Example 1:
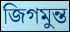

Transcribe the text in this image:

জিগমুন্ত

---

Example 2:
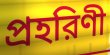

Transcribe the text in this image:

প্রহরিণী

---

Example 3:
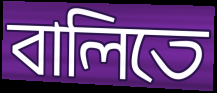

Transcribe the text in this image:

বালিতে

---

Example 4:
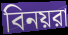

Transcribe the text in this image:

বিনয়রা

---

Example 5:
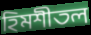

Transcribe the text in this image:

হিমশীতল